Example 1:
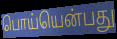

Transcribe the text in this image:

பொய்யென்பது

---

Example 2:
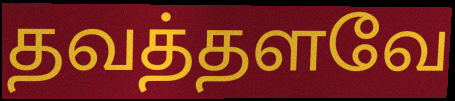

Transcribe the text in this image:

தவத்தளவே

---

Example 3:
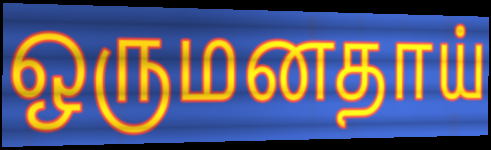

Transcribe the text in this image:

ஒருமனதாய்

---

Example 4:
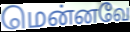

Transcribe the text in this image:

மென்னவே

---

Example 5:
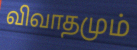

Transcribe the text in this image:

விவாதமும்